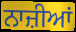
ਨਾਜ਼ੀਆਂ